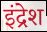
इंद्रेश